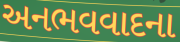
અનભવવાદના